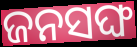
ଜନସଙ୍ଘ